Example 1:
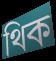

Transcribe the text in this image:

থিক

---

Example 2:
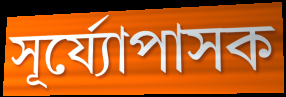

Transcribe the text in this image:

সূৰ্য্যোপাসক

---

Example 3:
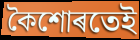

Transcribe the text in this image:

কৈশোৰতেই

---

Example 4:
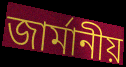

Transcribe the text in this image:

জাৰ্মানীয়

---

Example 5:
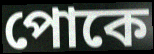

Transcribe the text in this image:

পোকে